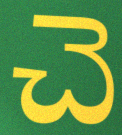
చె